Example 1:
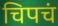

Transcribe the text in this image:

चिपचं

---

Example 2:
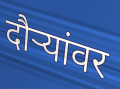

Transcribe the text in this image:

दौर्‍यांवर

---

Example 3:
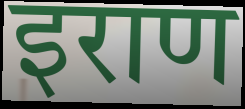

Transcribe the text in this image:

इराण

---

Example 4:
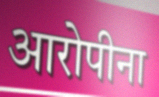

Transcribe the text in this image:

आरोपीना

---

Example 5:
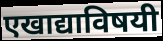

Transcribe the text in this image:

एखाद्याविषयी